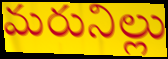
మరునిల్లు